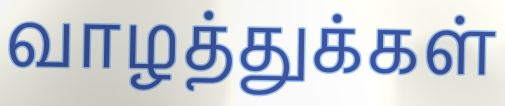
வாழத்துக்கள்